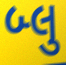
બ્લુ